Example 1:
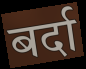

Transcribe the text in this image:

बर्दा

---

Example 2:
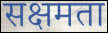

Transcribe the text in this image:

सक्षमता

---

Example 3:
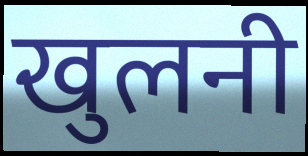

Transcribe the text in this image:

खुलनी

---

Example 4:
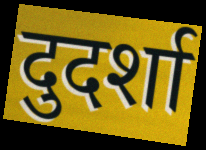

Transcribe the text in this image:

दुदर्शा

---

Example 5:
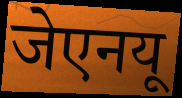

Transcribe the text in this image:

जेएनयू